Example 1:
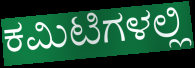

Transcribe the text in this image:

ಕಮಿಟಿಗಳಲ್ಲಿ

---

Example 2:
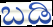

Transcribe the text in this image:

ಬಡಿ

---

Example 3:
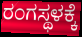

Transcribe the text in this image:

ರಂಗಸ್ಥಳಕ್ಕೆ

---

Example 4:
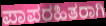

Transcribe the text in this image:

ಪಾಪರಹಿತರಾಗಿ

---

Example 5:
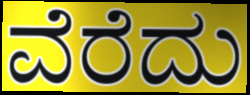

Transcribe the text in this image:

ವೆರೆದು